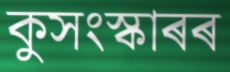
কুসংস্কাৰৰ